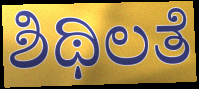
ಶಿಥಿಲತೆ